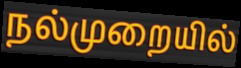
நல்முறையில்